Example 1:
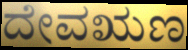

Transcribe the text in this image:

ದೇವಋಣ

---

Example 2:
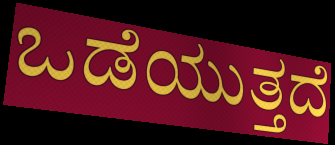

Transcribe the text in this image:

ಒಡೆಯುತ್ತದೆ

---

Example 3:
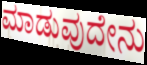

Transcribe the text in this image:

ಮಾಡುವುದೇನು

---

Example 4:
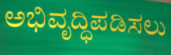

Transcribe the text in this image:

ಅಭಿವೃದ್ಧಿಪಡಿಸಲು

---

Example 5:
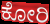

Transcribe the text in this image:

ಕೋರಿ